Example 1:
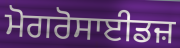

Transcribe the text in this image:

ਮੋਗਰੋਸਾਈਡਜ਼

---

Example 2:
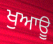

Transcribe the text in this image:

ਖੁਆਊ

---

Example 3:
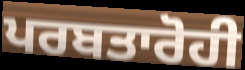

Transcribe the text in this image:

ਪਰਬਤਾਰੋਹੀ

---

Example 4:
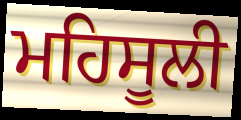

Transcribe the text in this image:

ਮਹਿਸੂਲੀ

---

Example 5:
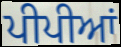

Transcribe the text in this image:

ਪੀਪੀਆਂ